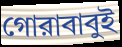
গোরাবাবুই